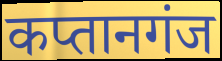
कप्तानगंज